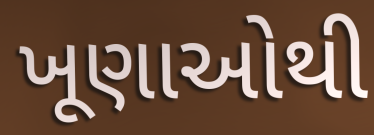
ખૂણાઓથી